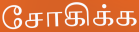
சோகிக்க